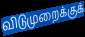
விடுமுறைக்குக்